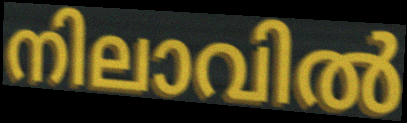
നിലാവിൽ